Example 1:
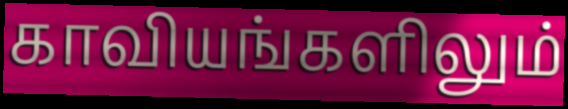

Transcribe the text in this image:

காவியங்களிலும்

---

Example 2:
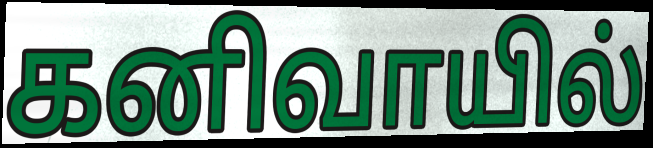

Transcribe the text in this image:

கனிவாயில்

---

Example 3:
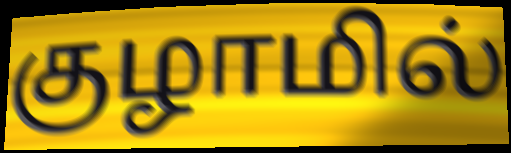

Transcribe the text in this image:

குழாமில்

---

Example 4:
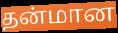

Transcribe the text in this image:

தன்மான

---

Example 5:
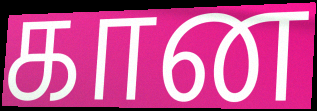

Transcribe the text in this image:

கான